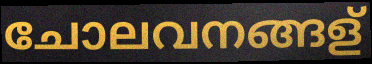
ചോലവനങ്ങള്